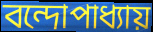
বন্দোপাধ্যায়